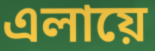
এলায়ে